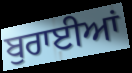
ਬੁਰਾਈਆਂ